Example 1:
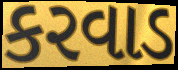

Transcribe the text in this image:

કરવાડ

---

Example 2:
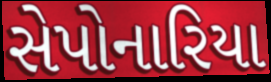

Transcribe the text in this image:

સેપોનારિયા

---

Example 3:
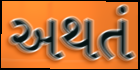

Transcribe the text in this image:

અથતં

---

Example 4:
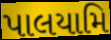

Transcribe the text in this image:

પાલયામિ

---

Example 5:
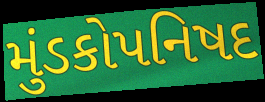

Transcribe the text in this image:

મુંડકોપનિષદ